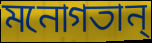
মনোগতান্